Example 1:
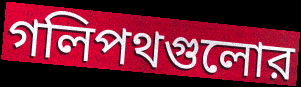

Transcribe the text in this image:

গলিপথগুলোর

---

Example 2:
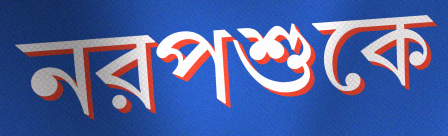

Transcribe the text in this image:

নরপশুকে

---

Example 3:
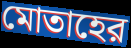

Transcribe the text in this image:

মোতাহের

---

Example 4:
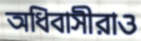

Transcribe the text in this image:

অধিবাসীরাও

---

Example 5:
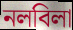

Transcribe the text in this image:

নলবিলা